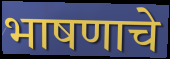
भाषणाचे